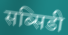
सब्सिडी